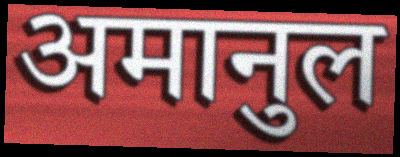
अमानुल